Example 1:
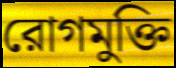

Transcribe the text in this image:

রোগমুক্তি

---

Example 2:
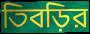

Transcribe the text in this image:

তিবড়ির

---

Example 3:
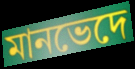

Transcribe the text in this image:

মানভেদে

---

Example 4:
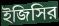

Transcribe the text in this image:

ইজিসির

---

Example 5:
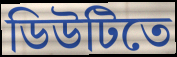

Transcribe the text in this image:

ডিউটিতে